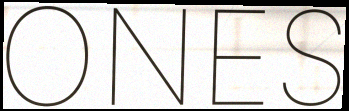
ONES